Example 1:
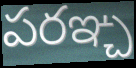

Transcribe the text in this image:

పరఞ్చ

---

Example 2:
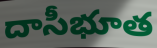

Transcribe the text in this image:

దాసీభూత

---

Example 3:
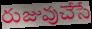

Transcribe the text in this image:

రుజువుచేసే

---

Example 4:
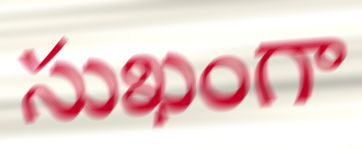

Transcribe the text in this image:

సుఖంగా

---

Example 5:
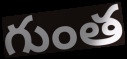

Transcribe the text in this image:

గుంత